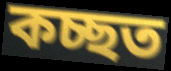
কচ্ছত